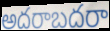
అదరాబదరా